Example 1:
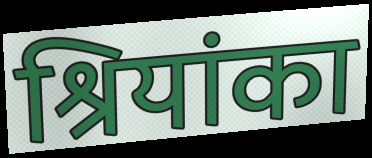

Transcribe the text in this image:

श्रियांका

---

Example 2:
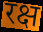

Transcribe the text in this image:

रक्ष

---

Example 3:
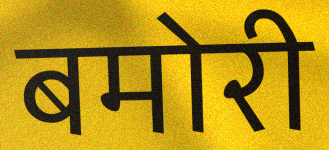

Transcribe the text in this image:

बमोरी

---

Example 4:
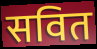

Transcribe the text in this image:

सवित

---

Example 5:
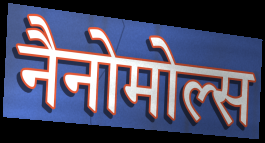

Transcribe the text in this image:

नैनोमोल्स